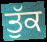
ਤੁੱਕ